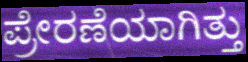
ಪ್ರೇರಣೆಯಾಗಿತ್ತು